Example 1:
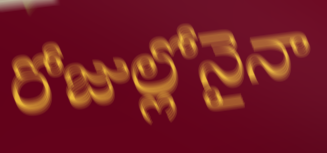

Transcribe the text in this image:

రోజుల్లోనైనా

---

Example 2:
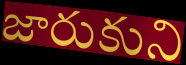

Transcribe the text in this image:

జారుకుని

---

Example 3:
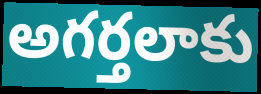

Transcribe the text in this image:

అగర్తలాకు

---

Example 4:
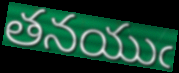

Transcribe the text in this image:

తనయుఁ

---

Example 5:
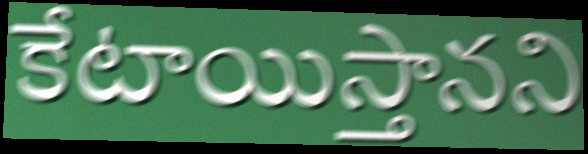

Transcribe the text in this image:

కేటాయిస్తానని